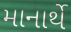
માનાર્થે